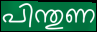
പിന്തുണ